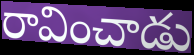
రావించాడు